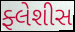
ફ્લેશીસ